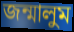
জন্মালুম